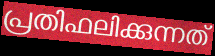
പ്രതിഫലിക്കുന്നത്